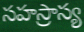
సహస్రాస్య